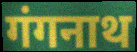
गंगनाथ